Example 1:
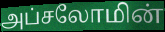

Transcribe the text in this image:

அப்சலோமின்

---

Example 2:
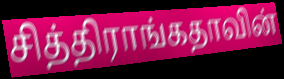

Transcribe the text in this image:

சித்திராங்கதாவின்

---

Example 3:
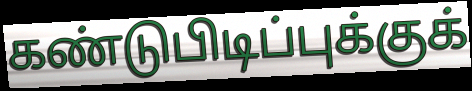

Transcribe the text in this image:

கண்டுபிடிப்புக்குக்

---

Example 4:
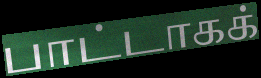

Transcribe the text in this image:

பாட்டாகக்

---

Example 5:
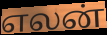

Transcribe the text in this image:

எலன்